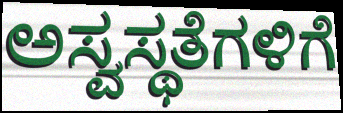
ಅಸ್ವಸ್ಥತೆಗಳಿಗೆ